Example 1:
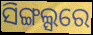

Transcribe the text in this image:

ସିଙ୍ଗଲ୍ସରେ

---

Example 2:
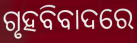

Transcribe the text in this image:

ଗୃହବିବାଦରେ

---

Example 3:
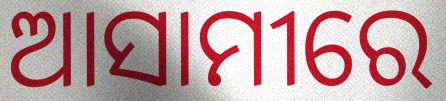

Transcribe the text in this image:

ଆସାମୀରେ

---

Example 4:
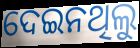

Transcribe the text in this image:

ଦେଇନଥିଲୁ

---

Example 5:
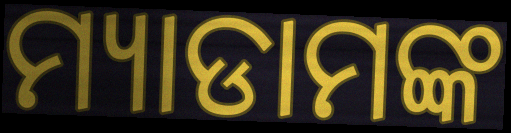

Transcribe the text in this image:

ମ୍ୟାଡାମଙ୍କ